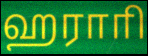
ஹராரி